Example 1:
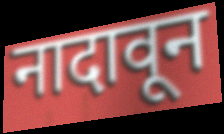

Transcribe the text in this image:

नादावून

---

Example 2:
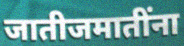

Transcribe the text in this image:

जातीजमातींना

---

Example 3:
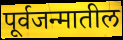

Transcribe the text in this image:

पूर्वजन्मातील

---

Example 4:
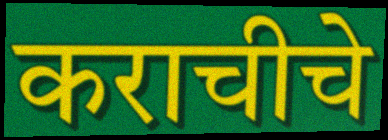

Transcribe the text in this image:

कराचीचे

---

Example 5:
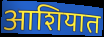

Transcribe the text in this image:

आशियात